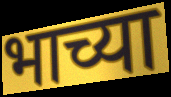
भाच्या